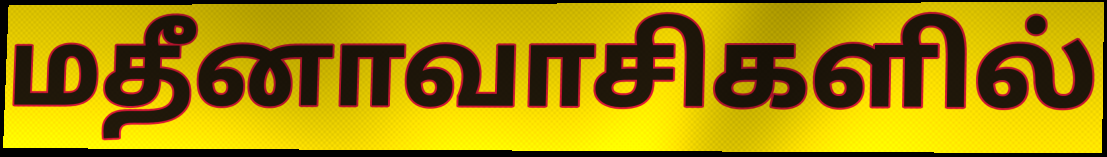
மதீனாவாசிகளில்